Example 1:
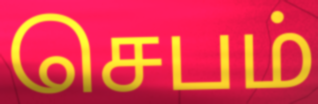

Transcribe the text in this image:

செபம்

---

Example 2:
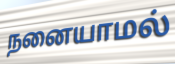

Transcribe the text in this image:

நனையாமல்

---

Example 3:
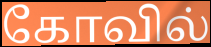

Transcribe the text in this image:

கோவில்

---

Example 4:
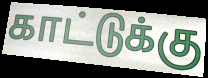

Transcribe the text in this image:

காட்டுக்கு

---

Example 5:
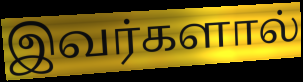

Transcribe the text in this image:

இவர்களால்